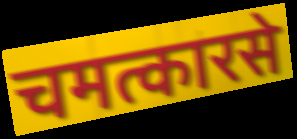
चमत्कारसे